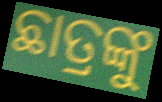
ଛାତ୍ରଙ୍କୁ